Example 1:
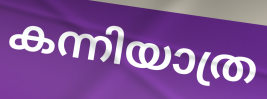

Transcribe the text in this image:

കന്നിയാത്ര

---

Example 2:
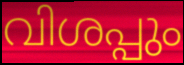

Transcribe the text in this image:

വിശപ്പും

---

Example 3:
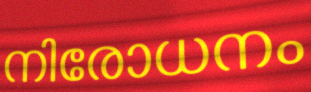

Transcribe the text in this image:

നിരോധനം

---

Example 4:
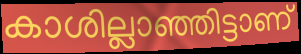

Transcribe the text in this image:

കാശില്ലാഞ്ഞിട്ടാണ്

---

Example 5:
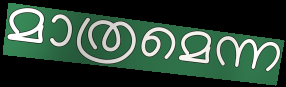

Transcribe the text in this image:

മാത്രമെന്ന